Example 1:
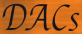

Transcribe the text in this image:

DACs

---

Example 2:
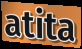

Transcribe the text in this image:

atita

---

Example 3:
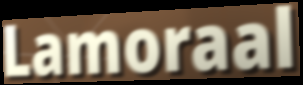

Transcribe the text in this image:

Lamoraal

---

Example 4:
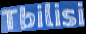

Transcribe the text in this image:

Tbilisi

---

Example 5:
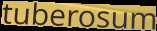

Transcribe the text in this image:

tuberosum